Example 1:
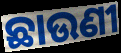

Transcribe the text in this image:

ଛାଉଣୀ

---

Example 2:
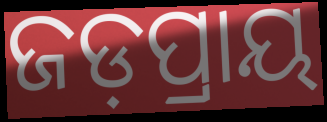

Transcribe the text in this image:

ଜଡ଼ପ୍ରାୟ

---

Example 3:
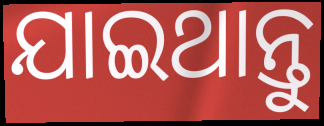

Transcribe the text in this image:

ଯାଇଥାନ୍ତୁ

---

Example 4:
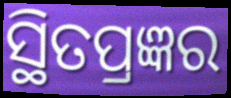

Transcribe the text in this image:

ସ୍ଥିତପ୍ରଜ୍ଞର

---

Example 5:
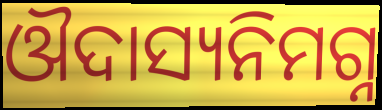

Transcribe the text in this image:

ଔଦାସ୍ୟନିମଗ୍ନ